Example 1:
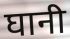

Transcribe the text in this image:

घानी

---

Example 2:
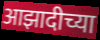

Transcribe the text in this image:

आझादीच्या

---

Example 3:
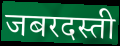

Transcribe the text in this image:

जबरदस्ती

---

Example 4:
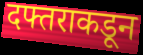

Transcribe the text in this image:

दफ्तराकडून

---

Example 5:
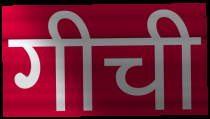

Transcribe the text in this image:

गीची